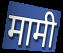
मामी